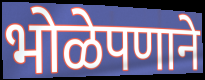
भोळेपणाने